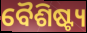
ବୈଶିଷ୍ଟ୍ୟ